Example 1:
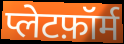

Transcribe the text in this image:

प्लेटफ़ॉर्म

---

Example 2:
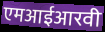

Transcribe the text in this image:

एमआईआरवी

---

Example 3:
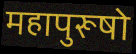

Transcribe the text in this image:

महापुरूषो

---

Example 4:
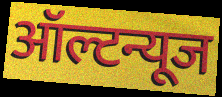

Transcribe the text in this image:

ऑल्टन्यूज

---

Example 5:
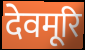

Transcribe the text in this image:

देवमूरि